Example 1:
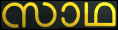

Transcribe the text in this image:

സാഥ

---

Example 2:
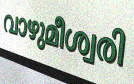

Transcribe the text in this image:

വാഴുമീശ്വരി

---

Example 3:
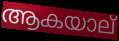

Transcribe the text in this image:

ആകയാല്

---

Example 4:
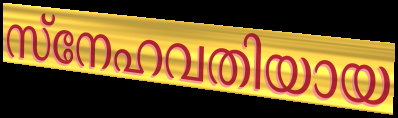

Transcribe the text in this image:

സ്നേഹവതിയായ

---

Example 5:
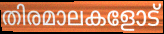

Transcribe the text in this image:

തിരമാലകളോട്